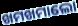
ଖମଖମାଲୋ